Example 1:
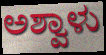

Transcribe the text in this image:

ಅಶ್ವಾಳು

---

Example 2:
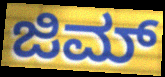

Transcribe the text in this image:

ಜಿಮ್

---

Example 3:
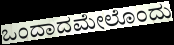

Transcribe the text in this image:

ಒಂದಾದಮೇಲೊಂದು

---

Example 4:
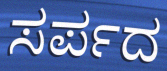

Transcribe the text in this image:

ಸರ್ಪದ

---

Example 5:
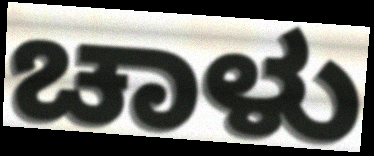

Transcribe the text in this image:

ಚಾಳು